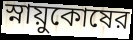
স্নায়ুকোষের